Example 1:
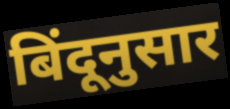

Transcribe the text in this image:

बिंदूनुसार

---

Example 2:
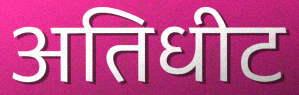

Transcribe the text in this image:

अतिधीट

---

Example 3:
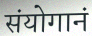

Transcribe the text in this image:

संयोगानं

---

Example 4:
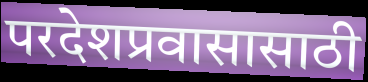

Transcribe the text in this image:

परदेशप्रवासासाठी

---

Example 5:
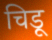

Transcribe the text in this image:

चिडू